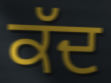
ਕੱਦ